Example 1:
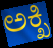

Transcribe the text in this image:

ಅಕ್ಖಿ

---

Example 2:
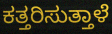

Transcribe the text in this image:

ಕತ್ತರಿಸುತ್ತಾಳೆ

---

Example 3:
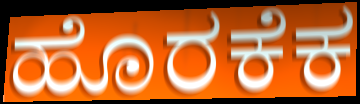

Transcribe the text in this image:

ಹೊರಕೆಕ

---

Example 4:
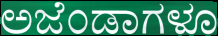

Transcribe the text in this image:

ಅಜೆಂಡಾಗಳೂ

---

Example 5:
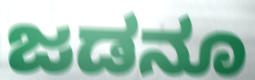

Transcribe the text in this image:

ಜಡನೂ